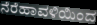
ನೆರೆಹಾವಳಿಯಿಂದ